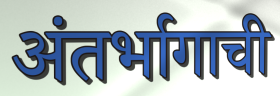
अंतर्भागाची